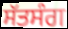
ਸੱਤਸੰਗ